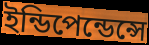
ইন্ডিপেন্ডেন্সে